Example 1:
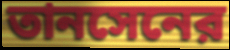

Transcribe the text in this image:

তানসেনের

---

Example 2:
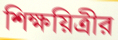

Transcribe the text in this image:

শিক্ষয়িত্রীর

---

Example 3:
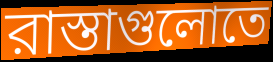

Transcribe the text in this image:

রাস্তাগুলোতে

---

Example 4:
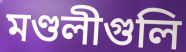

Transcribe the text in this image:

মণ্ডলীগুলি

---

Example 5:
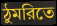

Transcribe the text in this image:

ঠুমরিতে